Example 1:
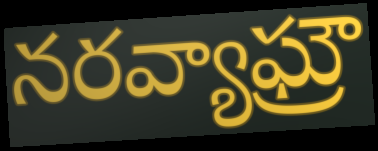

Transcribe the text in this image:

నరవ్యాఘ్రౌ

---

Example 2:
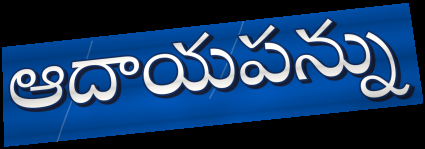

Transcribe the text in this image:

ఆదాయపన్ను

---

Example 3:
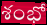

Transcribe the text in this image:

శంభో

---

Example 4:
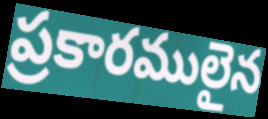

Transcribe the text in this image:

ప్రకారములైన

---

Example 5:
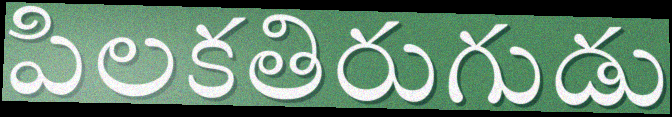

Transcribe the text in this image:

పిలకతిరుగుడు